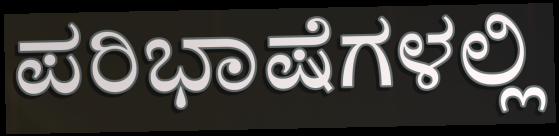
ಪರಿಭಾಷೆಗಳಲ್ಲಿ